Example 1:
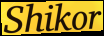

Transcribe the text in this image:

Shikor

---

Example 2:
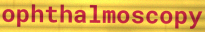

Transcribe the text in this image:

ophthalmoscopy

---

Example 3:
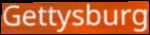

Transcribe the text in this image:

Gettysburg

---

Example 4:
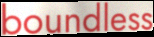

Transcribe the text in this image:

boundless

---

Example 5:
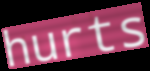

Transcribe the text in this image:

hurts